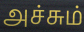
அச்சும்